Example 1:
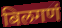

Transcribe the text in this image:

बिलगणं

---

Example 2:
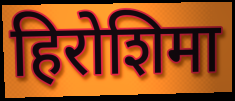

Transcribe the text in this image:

हिरोशिमा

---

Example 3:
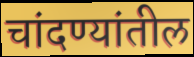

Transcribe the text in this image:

चांदण्यांतील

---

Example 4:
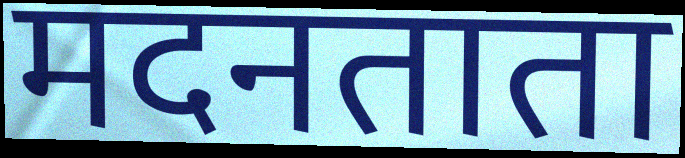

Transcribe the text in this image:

मदनताता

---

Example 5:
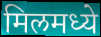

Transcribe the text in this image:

मिलमध्ये